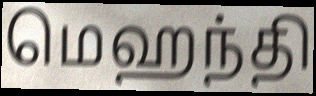
மெஹந்தி